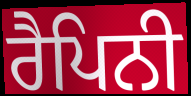
ਰੈਪਿਨੀ